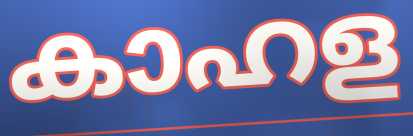
കാഹള